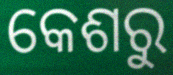
କେଶରୁ